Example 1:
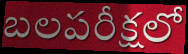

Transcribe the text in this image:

బలపరీక్షలో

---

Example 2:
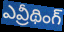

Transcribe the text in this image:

ఎవ్రీథింగ్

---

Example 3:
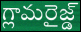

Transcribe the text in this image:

గ్లామరైజ్డ్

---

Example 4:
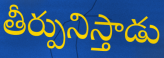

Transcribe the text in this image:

తీర్పునిస్తాడు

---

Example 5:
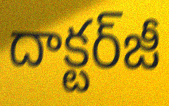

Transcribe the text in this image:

దాక్టర్‌జీ